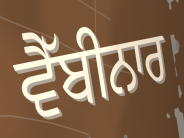
ਵੈੱਬੀਨਾਰ